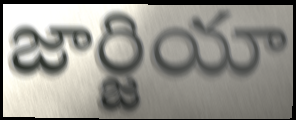
జార్జియా